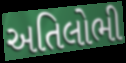
અતિલોભી